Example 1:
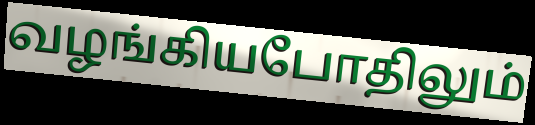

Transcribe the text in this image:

வழங்கியபோதிலும்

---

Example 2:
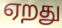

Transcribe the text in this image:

ஏறது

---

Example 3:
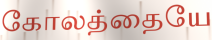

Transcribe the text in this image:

கோலத்தையே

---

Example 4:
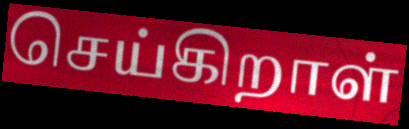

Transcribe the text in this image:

செய்கிறாள்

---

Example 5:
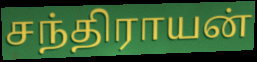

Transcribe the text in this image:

சந்திராயன்